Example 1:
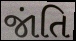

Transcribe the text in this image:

જાંતિ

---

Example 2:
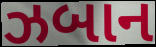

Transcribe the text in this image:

ઝબાન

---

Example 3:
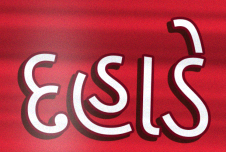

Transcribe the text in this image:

દહાડે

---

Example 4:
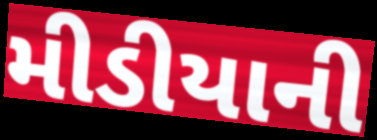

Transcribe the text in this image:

મીડીયાની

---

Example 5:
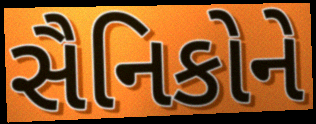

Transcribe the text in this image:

સૈનિકોને